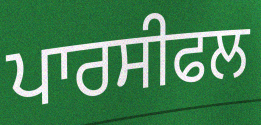
ਪਾਰਸੀਫਲ